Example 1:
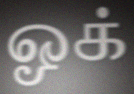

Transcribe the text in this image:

ஓக்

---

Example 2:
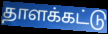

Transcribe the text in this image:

தாளக்கட்டு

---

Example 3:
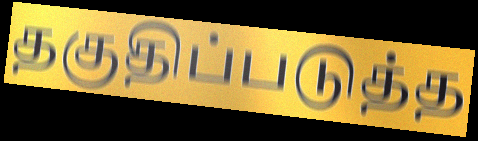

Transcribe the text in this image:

தகுதிப்படுத்த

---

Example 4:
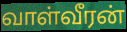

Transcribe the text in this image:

வாள்வீரன்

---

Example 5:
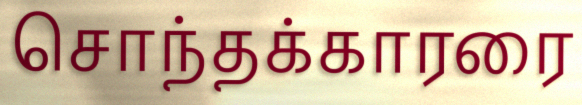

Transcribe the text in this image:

சொந்தக்காரரை